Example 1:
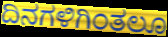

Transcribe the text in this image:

ದಿನಗಳಿಗಿಂತಲೂ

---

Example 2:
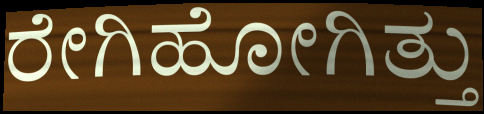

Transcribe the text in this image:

ರೇಗಿಹೋಗಿತ್ತು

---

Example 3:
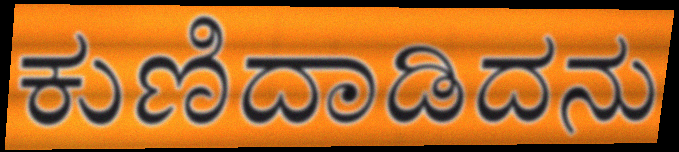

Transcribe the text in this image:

ಕುಣಿದಾಡಿದನು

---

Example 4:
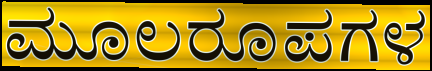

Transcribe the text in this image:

ಮೂಲರೂಪಗಳ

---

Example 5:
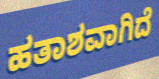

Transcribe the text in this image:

ಹತಾಶವಾಗಿದೆ